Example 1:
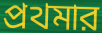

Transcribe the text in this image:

প্রথমার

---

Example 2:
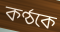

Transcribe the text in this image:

কণ্ঠকে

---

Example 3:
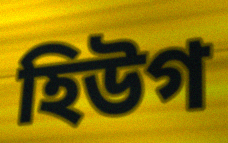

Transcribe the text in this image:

হিউগ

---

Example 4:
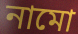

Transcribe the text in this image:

নামো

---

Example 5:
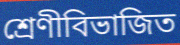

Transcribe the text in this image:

শ্রেণীবিভাজিত